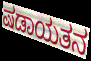
ಷಡಾಯತನ